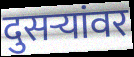
दुसर्‍यांवर